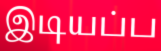
இடியப்ப